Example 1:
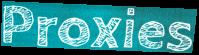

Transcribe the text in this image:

Proxies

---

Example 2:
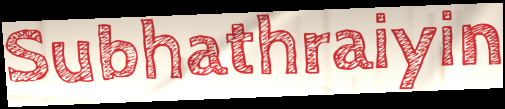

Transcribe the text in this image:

Subhathraiyin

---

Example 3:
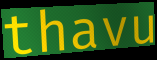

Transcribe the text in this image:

thavu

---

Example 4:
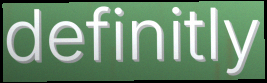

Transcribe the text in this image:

definitly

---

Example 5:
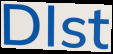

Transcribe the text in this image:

DIst